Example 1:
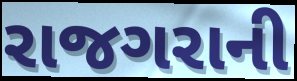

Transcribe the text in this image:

રાજગરાની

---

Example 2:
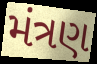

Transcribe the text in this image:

મંત્રણ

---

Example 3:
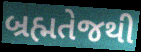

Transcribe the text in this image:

બ્રહ્મતેજથી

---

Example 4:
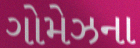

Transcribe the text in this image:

ગોમેઝના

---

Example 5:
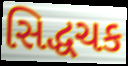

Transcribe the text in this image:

સિદ્ધચક